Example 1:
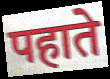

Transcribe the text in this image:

पहाते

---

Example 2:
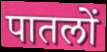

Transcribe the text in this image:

पातलों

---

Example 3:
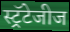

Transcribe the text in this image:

स्ट्रॅटेजीज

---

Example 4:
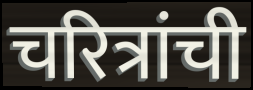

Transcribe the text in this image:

चरित्रांची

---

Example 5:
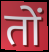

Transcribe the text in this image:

तों